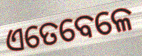
ଏତେବେଳେ